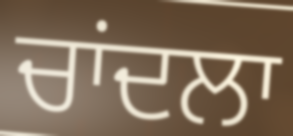
ਚਾਂਦਲਾ